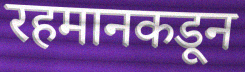
रहमानकडून